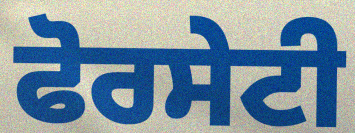
ਫੋਰਸੇਟੀ